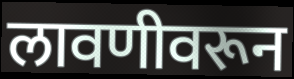
लावणीवरून